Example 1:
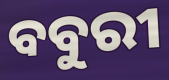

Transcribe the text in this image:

ବବୁରୀ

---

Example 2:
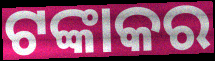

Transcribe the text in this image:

ଟଙ୍କାକର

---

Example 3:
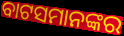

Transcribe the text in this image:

ବାଟସମାନଙ୍କର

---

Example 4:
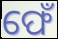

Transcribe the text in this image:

ଫେଁ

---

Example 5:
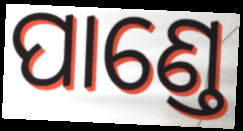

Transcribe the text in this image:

ପାଣ୍ଡେ